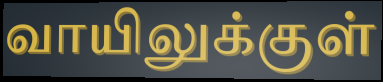
வாயிலுக்குள்